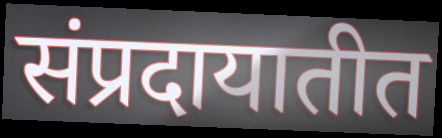
संप्रदायातीत